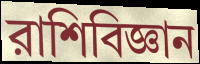
রাশিবিজ্ঞান